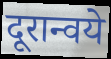
दूरान्वये